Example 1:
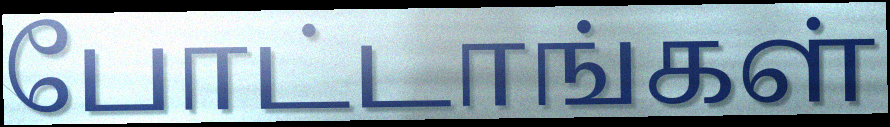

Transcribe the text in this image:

போட்டாங்கள்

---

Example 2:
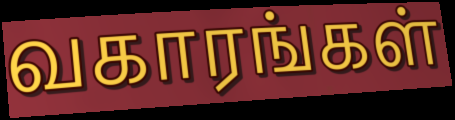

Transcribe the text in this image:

வகாரங்கள்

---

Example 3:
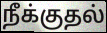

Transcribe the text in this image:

நீக்குதல்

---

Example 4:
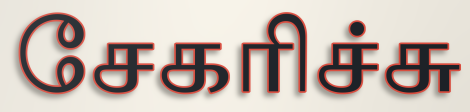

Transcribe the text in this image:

சேகரிச்சு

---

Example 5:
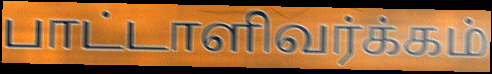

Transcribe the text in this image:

பாட்டாளிவர்க்கம்